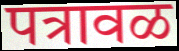
पत्रावळ